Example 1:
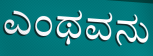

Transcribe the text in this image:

ಎಂಥವನು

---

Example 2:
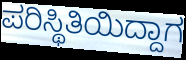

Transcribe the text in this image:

ಪರಿಸ್ಥಿತಿಯಿದ್ದಾಗ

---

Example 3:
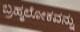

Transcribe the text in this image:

ಬ್ರಹ್ಮಲೋಕವನ್ನು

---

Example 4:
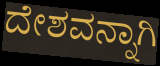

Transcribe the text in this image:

ದೇಶವನ್ನಾಗಿ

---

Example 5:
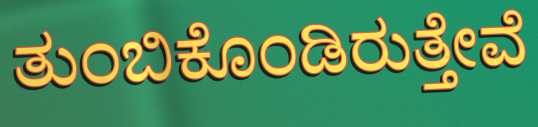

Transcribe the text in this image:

ತುಂಬಿಕೊಂಡಿರುತ್ತೇವೆ